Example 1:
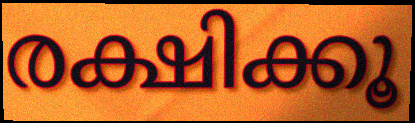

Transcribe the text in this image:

രക്ഷിക്കൂ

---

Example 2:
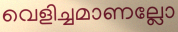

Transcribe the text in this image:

വെളിച്ചമാണല്ലോ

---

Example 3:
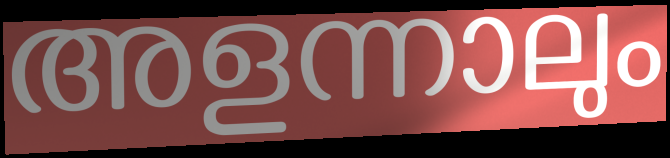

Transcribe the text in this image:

അളന്നാലും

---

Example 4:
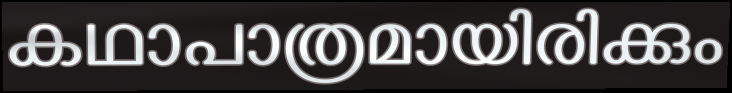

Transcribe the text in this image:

കഥാപാത്രമായിരിക്കും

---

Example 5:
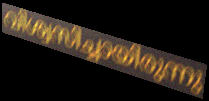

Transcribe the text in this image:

വിശ്വസിച്ചായിരുന്നു